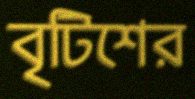
বৃটিশের